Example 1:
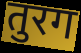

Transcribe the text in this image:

तुरग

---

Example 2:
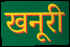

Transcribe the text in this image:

खनूरी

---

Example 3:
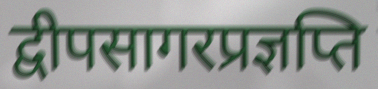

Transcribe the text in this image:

द्वीपसागरप्रज्ञप्ति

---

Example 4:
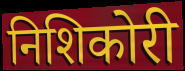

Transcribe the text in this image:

निशिकोरी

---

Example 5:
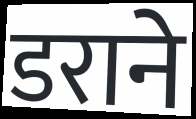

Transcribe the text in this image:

डराने